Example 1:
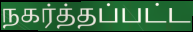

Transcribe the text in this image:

நகர்த்தப்பட்ட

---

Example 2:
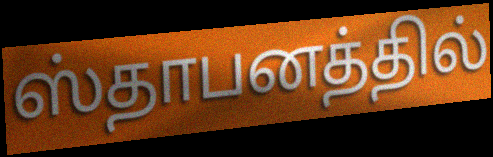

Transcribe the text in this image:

ஸ்தாபனத்தில்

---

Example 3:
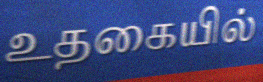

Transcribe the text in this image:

உதகையில்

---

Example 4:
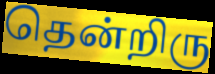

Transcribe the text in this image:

தென்றிரு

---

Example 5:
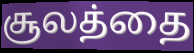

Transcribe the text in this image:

சூலத்தை